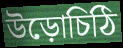
উড়োচিঠি